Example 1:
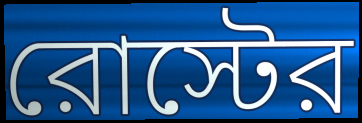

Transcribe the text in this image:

রোস্টের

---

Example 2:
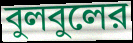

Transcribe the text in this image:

বুলবুলের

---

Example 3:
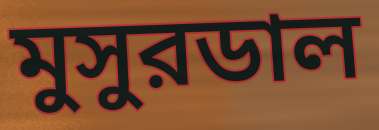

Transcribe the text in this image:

মুসুরডাল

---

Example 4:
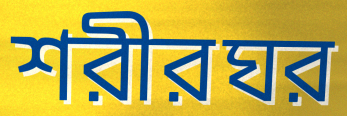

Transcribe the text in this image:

শরীরঘর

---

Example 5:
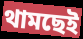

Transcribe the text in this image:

থামছেই